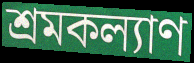
শ্রমকল্যাণ